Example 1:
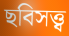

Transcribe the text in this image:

ছবিসত্ত্ব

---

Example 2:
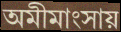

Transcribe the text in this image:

অমীমাংসায়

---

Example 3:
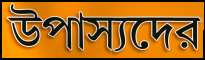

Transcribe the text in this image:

উপাস্যদের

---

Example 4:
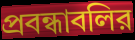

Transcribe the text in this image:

প্রবন্ধাবলির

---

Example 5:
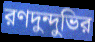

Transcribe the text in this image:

রণদুন্দুভির